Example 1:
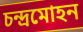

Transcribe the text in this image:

চন্দ্রমোহন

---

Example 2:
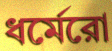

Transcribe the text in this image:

ধর্মেরো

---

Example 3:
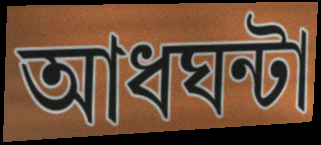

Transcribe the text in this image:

আধঘন্টা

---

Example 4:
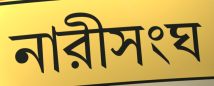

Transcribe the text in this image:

নারীসংঘ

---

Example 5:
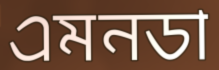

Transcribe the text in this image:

এমনডা